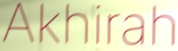
Akhirah